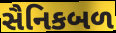
સૈનિકબળ